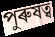
পুৰুষত্ব